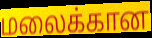
மலைக்கான